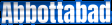
Abbottabad